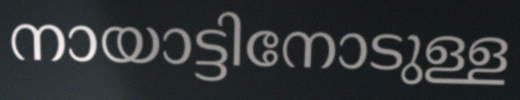
നായാട്ടിനോടുള്ള